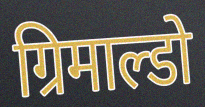
ग्रिमाल्डो